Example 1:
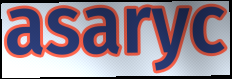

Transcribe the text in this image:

asaryc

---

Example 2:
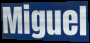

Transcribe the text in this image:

Miguel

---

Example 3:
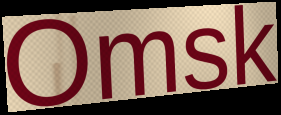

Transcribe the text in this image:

Omsk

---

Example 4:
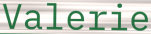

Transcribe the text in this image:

Valerie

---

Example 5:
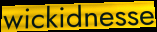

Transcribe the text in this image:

wickidnesse